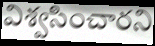
విశ్వసించారని